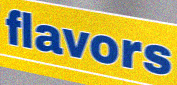
flavors